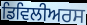
ਡਿਵਿਲੀਅਰਸ